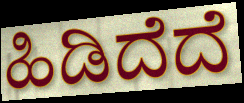
ಹಿಡಿದೆದೆ